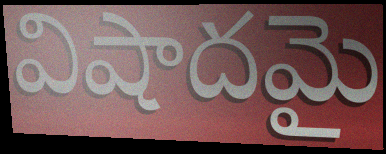
విషాదమై